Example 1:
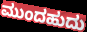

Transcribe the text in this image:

ಮುಂದಹುದು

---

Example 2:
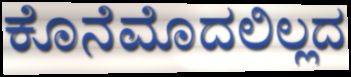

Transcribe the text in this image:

ಕೊನೆಮೊದಲಿಲ್ಲದ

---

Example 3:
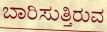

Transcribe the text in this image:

ಬಾರಿಸುತ್ತಿರುವ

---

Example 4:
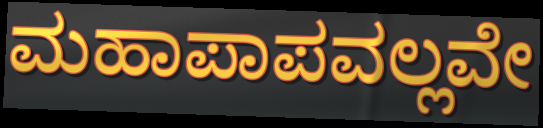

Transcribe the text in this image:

ಮಹಾಪಾಪವಲ್ಲವೇ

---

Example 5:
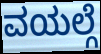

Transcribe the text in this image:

ವಯಲ್ಗೆ